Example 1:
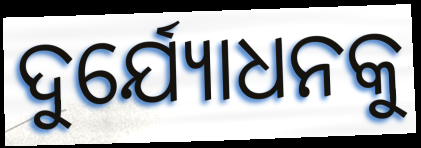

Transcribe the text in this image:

ଦୁର୍ଯ୍ୟୋଧନକୁ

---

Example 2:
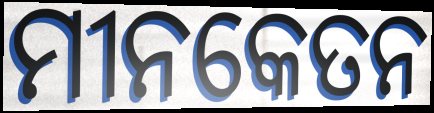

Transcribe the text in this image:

ମୀନକେତନ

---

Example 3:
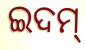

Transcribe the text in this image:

ଇଦମ୍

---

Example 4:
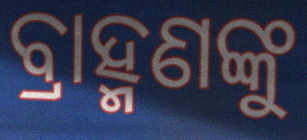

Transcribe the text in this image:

ବ୍ରାହ୍ମଣଙ୍କୁ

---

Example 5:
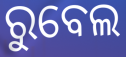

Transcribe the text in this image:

ରୁବେଲ